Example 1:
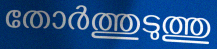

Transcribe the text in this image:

തോർത്തുടുത്തു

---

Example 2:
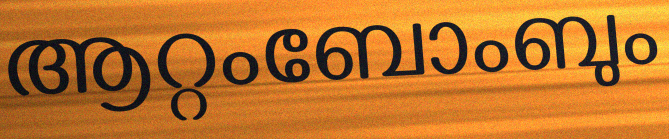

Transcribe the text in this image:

ആറ്റംബോംബും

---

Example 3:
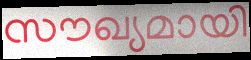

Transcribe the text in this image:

സൗഖ്യമായി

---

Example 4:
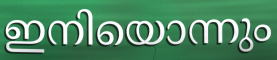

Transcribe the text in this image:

ഇനിയൊന്നും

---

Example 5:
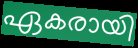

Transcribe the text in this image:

ഏകരായി